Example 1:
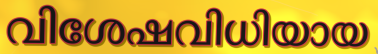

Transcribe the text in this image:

വിശേഷവിധിയായ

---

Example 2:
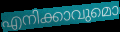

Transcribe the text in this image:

എനിക്കാവുമൊ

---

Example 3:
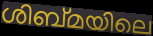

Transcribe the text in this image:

ശിബ്മയിലെ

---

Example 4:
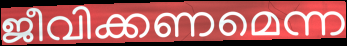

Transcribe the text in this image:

ജീവിക്കണമെന്ന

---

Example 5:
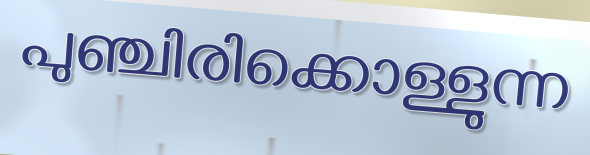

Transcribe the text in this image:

പുഞ്ചിരിക്കൊള്ളുന്ന